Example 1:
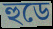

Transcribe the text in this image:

হুডে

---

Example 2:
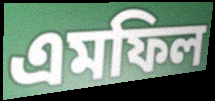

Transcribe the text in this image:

এমফিল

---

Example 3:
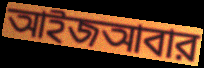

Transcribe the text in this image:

আইজআবার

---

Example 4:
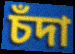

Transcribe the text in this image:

চঁদা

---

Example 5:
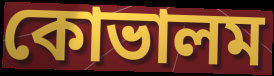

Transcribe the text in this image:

কোভালম